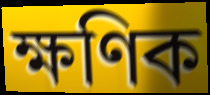
ক্ষণিক